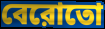
বেরোতো